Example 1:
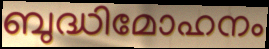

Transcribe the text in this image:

ബുദ്ധിമോഹനം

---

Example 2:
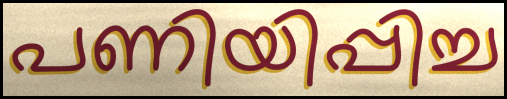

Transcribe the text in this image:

പണിയിപ്പിച്ച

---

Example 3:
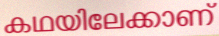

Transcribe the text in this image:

കഥയിലേക്കാണ്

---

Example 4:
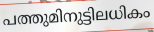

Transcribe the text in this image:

പത്തുമിനുട്ടിലധികം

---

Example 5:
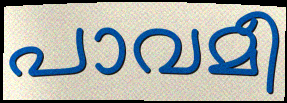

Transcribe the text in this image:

പാവമീ